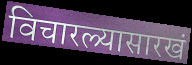
विचारल्यासारखं